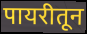
पायरीतून